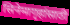
सिनेमागृहांसाठी